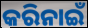
କରିନାଇଁ